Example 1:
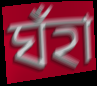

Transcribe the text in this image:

ঘঁহা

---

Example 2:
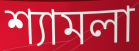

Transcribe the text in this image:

শ্যামলা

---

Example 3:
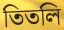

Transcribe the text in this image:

তিতলি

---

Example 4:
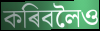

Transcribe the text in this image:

কৰিবলৈও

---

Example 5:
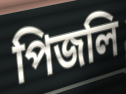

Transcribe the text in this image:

পিজলি